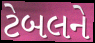
ટેબલને